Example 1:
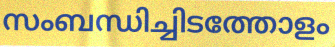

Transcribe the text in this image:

സംബന്ധിച്ചിടത്തോളം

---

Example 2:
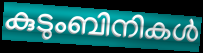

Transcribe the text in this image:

കുടുംബിനികൾ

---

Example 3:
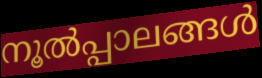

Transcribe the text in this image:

നൂൽപ്പാലങ്ങൾ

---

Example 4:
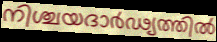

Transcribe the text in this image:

നിശ്ചയദാർഢ്യത്തിൽ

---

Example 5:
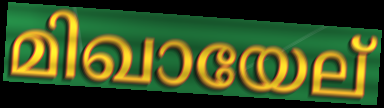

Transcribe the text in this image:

മിഖായേല്